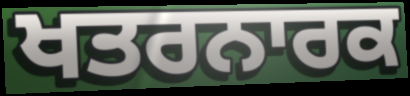
ਖਤਰਨਾਰਕ